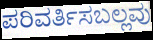
ಪರಿವರ್ತಿಸಬಲ್ಲವು